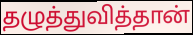
தழுத்துவித்தான்